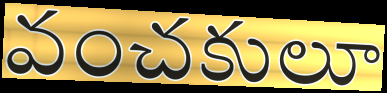
వంచకులూ